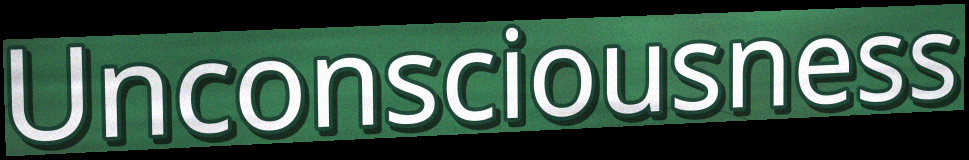
Unconsciousness